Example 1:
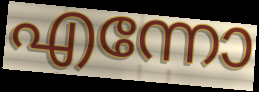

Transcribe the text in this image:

എന്നോ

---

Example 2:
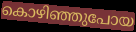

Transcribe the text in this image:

കൊഴിഞ്ഞുപോയ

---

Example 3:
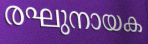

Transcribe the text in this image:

രഘുനായക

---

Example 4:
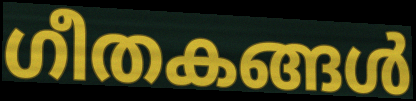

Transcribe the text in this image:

ഗീതകങ്ങൾ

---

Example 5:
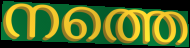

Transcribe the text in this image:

നത്തെ